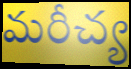
మరీచ్య